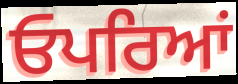
ਓਪਰਿਆਂ